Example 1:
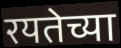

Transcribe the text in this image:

रयतेच्या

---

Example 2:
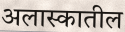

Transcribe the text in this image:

अलास्कातील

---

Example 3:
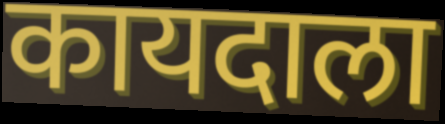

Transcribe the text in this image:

कायदाला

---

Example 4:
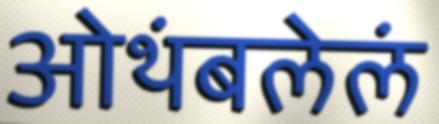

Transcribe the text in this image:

ओथंबलेलं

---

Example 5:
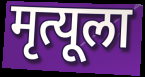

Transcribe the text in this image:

मृत्यूला